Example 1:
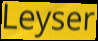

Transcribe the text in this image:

Leyser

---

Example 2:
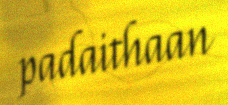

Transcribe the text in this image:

padaithaan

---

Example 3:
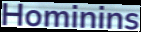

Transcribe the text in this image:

Hominins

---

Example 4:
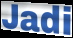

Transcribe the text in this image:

Jadi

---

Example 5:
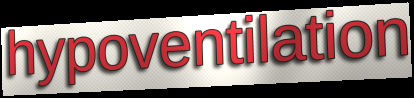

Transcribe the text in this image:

hypoventilation